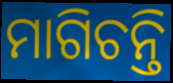
ମାଗିଚନ୍ତି